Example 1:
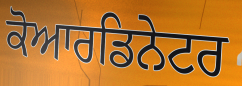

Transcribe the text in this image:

ਕੋਆਰਡਿਨੇਟਰ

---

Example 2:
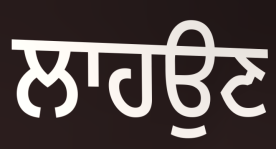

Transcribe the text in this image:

ਲਾਹਉਣ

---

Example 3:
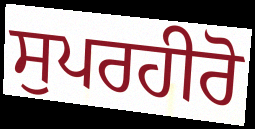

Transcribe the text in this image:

ਸੁਪਰਹੀਰੋ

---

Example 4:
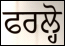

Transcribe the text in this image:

ਫਰਲ੍ਹੋ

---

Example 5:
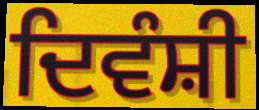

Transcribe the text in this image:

ਦਿਵੰਸ਼ੀ